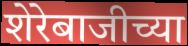
शेरेबाजीच्या